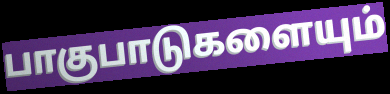
பாகுபாடுகளையும்